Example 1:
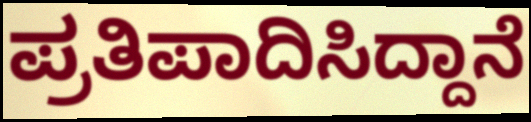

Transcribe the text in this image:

ಪ್ರತಿಪಾದಿಸಿದ್ದಾನೆ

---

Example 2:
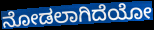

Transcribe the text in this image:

ನೋಡಲಾಗಿದೆಯೋ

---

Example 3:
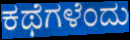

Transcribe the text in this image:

ಕಥೆಗಳೆಂದು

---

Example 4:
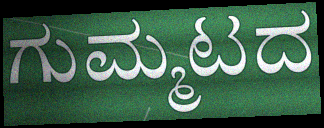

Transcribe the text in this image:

ಗುಮ್ಮಟದ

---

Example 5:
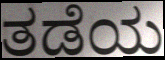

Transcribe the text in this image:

ತಡೆಯ